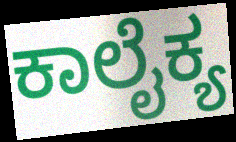
ಕಾಲೈಕ್ಯ